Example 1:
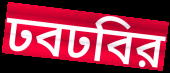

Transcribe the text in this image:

ঢবঢবির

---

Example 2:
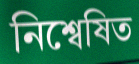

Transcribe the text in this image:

নিশ্বেষিত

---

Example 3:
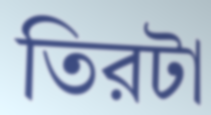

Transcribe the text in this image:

তিরটা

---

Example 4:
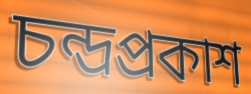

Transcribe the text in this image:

চন্দ্রপ্রকাশ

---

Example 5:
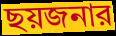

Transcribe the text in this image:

ছয়জনার